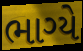
ભાગ્યે